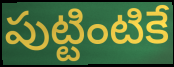
పుట్టింటికే